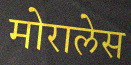
मोरालेस